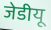
जेडीयू